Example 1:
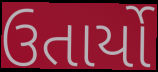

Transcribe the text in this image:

ઉતાર્યો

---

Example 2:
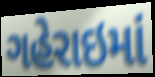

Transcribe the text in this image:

ગહેરાઇમાં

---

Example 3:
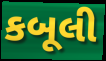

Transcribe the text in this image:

કબૂલી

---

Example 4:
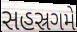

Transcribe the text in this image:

સહસ્રગમે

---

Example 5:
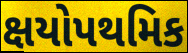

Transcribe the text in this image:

ક્ષયોપથમિક